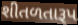
શીતળતારૂપ